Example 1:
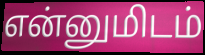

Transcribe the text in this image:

என்னுமிடம்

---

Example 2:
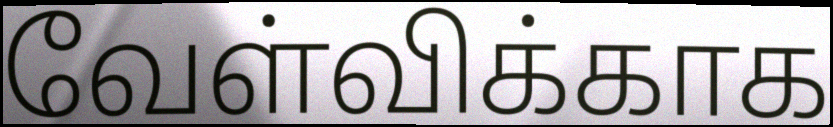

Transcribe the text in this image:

வேள்விக்காக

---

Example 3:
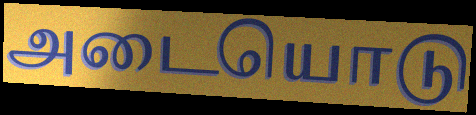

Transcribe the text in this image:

அடையொடு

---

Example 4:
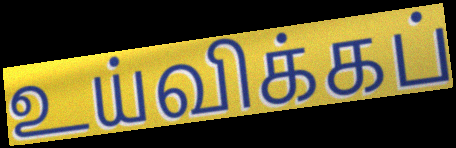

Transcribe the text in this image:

உய்விக்கப்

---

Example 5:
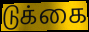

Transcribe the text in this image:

டுக்கை